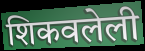
शिकवलेली